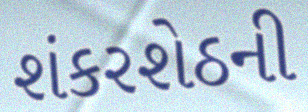
શંકરશેઠની